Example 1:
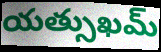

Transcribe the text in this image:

యత్సుఖమ్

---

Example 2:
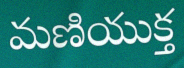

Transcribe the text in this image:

మణియుక్త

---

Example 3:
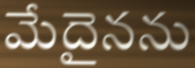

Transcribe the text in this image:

మేదైనను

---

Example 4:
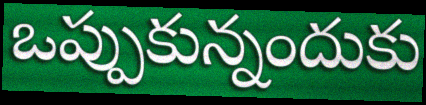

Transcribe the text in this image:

ఒప్పుకున్నందుకు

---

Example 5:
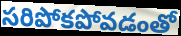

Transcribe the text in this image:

సరిపోకపోవడంతో